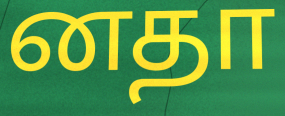
னதா